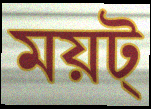
ময়ট্